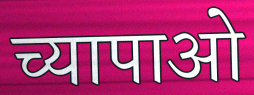
च्यापाओ